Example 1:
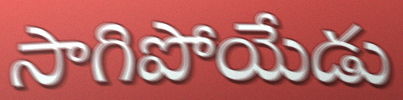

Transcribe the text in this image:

సాగిపోయేడు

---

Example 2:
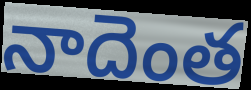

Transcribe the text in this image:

నాదెంత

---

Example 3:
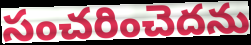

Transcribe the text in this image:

సంచరించెదను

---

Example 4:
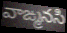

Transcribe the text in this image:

వాఙ్మనసి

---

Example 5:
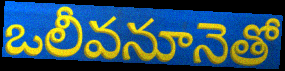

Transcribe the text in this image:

ఒలీవనూనెతో